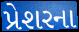
પ્રેશરના